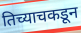
तिच्याचकडून